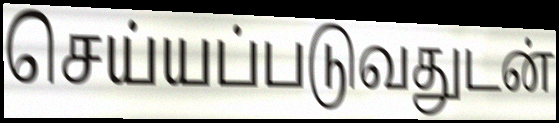
செய்யப்படுவதுடன்